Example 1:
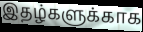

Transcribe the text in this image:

இதழ்களுக்காக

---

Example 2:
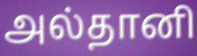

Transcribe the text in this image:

அல்தானி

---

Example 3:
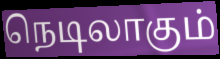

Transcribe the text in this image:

நெடிலாகும்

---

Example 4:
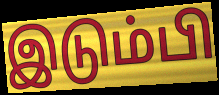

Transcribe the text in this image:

இடும்பி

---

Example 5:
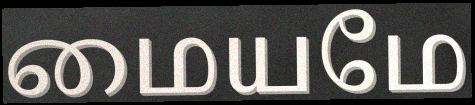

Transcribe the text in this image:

மையமே